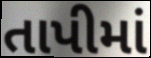
તાપીમાં